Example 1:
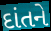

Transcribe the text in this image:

દાંતને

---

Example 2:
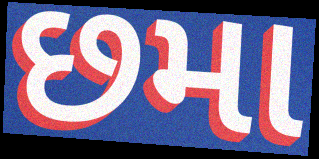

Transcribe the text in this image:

છમા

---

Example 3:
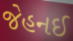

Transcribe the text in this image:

જેહનઈ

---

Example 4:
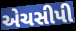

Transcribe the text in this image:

એચસીપી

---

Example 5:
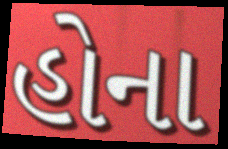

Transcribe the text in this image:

હોના